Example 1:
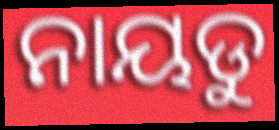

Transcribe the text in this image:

ନାୟଡୁ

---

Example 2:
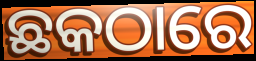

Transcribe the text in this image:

ଛକଠାରେ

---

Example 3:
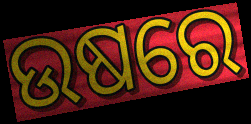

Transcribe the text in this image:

ଉଷରେ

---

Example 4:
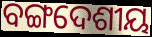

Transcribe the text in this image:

ବଙ୍ଗଦେଶୀୟ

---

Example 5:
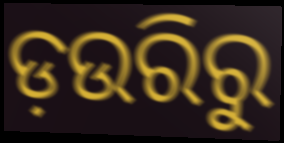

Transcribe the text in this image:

ଡ଼ଉରିରୁ